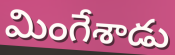
మింగేశాడు